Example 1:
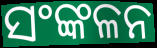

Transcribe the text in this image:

ସଂଙ୍କଳନ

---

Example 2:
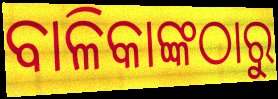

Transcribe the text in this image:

ବାଳିକାଙ୍କଠାରୁ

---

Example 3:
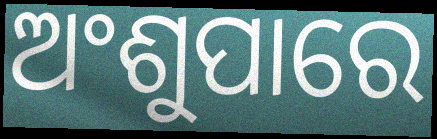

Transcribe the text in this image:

ଅଂଶୁପାରେ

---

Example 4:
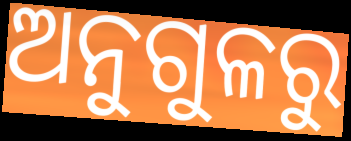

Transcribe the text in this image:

ଅନୁଗୁଳରୁ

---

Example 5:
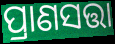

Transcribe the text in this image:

ପ୍ରାଣସତ୍ତା